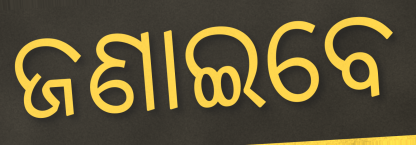
ଜଣାଇବେ